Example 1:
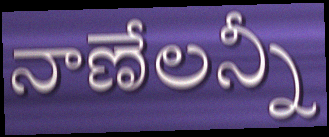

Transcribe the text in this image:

నాణేలన్నీ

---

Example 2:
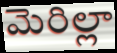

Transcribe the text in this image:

మెరిల్లా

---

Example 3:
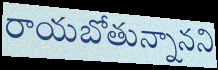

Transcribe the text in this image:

రాయబోతున్నానని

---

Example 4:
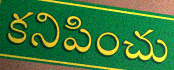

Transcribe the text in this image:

కనిపించు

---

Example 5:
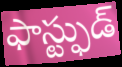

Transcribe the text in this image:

ఫాస్ట్ఫుడ్